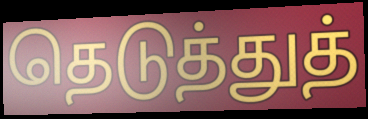
தெடுத்துத்